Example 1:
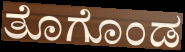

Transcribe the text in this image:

ತೊಗೊಂಡ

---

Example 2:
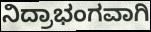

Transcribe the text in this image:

ನಿದ್ರಾಭಂಗವಾಗಿ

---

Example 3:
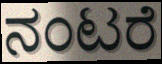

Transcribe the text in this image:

ನಂಟರೆ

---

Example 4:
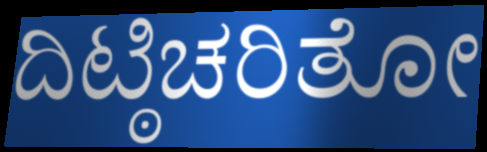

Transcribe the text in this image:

ದಿಟ್ಠಿಚರಿತೋ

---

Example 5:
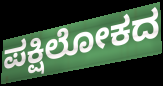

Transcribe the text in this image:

ಪಕ್ಷಿಲೋಕದ